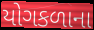
યોગકળાના